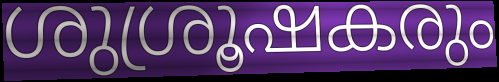
ശുശ്രൂഷകരും